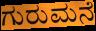
ಗುರುಮನೆ